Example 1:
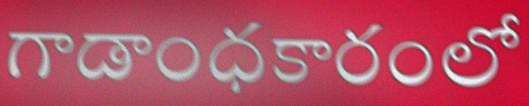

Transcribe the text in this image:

గాడాంధకారంలో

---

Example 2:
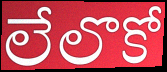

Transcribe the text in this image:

లేలొకో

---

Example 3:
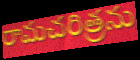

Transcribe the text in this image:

రామచరిత్రను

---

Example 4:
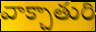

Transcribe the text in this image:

వాక్చాతురి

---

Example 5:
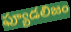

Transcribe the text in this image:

ఫ్యూడలిజం